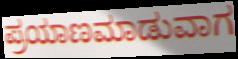
ಪ್ರಯಾಣಮಾಡುವಾಗ